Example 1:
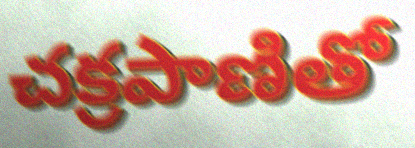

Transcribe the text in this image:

చక్రపాణితో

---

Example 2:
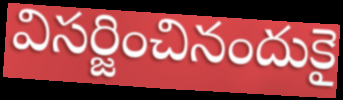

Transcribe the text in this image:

విసర్జించినందుకై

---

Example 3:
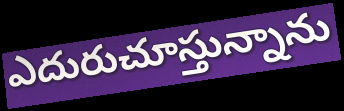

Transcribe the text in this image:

ఎదురుచూస్తున్నాను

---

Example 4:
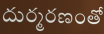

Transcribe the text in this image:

దుర్మరణంతో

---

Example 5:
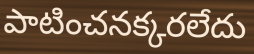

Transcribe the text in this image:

పాటించనక్కరలేదు